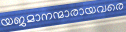
യജമാനന്മാരായവരെ